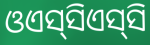
ଓଏସ୍‌ସିଏସ୍‌ସି